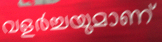
വളർച്ചയുമാണ്